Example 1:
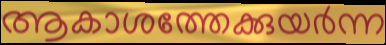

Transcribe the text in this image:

ആകാശത്തേക്കുയർന്ന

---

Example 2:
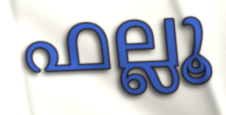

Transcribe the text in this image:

ഫല്ലൂ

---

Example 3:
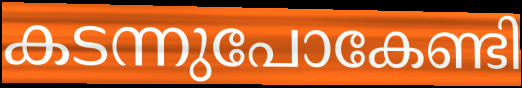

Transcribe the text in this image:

കടന്നുപോകേണ്ടി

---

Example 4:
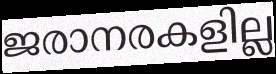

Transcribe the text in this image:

ജരാനരകളില്ല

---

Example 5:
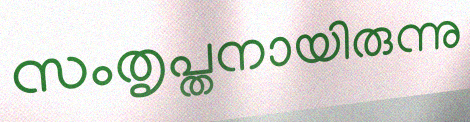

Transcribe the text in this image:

സംതൃപ്തനായിരുന്നു